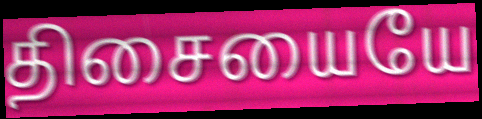
திசையையே